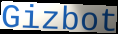
Gizbot